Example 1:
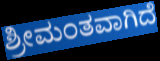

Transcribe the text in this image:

ಶ್ರೀಮಂತವಾಗಿದೆ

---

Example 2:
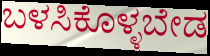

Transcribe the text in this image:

ಬಳಸಿಕೊಳ್ಳಬೇಡ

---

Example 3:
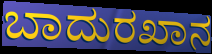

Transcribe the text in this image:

ಬಾದುರಖಾನ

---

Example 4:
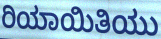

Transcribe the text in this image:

ರಿಯಾಯಿತಿಯು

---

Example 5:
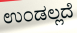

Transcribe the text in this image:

ಉಂಡಲ್ಲದೆ